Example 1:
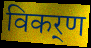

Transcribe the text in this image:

विकर्ण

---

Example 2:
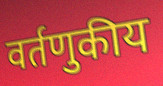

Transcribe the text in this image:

वर्तणुकीय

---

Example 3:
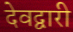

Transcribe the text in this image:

देवद्वारी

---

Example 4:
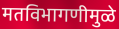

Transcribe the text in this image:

मतविभागणीमुळे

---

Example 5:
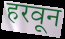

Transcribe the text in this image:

हरवून